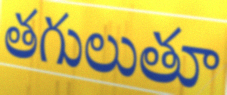
తగులుతూ